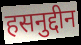
हसनुद्दीन